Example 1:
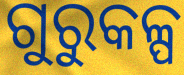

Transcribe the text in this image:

ଗୁରୁକଳ୍ପ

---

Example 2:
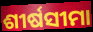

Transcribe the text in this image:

ଶୀର୍ଷସୀମା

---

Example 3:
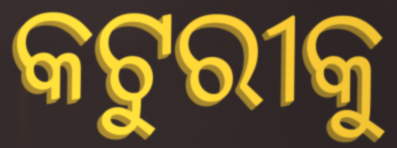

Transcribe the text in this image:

କଟୁରୀକୁ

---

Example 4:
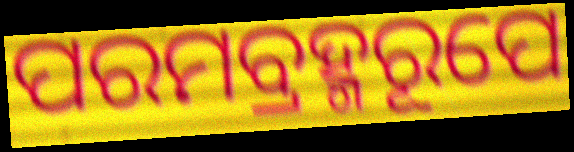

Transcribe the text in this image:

ପରମବ୍ରହ୍ମରୂପେ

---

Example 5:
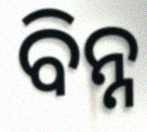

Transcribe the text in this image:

ବିନ୍ନ